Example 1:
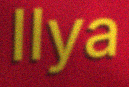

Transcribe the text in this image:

Ilya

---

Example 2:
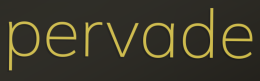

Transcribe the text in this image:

pervade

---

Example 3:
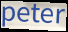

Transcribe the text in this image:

peter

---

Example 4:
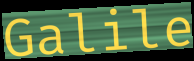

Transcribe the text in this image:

Galile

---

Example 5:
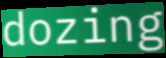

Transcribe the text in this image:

dozing